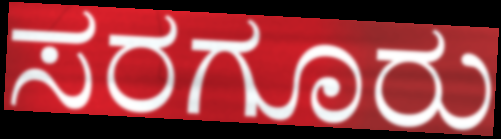
ಸರಗೂರು